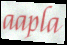
aapla